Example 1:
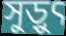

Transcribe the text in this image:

সুড়ুৎ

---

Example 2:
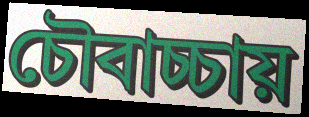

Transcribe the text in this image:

চৌবাচ্চায়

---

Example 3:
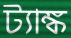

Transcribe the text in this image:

ট্যাঙ্ক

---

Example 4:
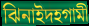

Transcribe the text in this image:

ঝিনাইদহগামী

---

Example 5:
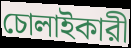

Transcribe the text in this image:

চোলাইকারী